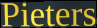
Pieters